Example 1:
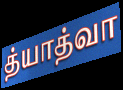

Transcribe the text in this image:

த்யாத்வா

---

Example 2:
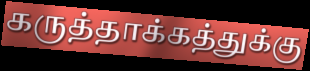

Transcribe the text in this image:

கருத்தாக்கத்துக்கு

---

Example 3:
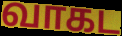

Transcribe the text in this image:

வாகட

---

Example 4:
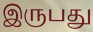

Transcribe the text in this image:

இருபது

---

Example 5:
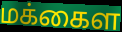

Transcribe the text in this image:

மக்கைள